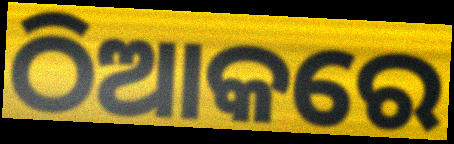
ଠିଆକରେ